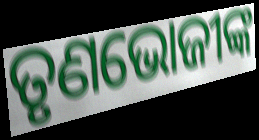
ତୃଣଭୋଜୀଙ୍କ